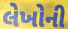
લેખોની